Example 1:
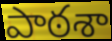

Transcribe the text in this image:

పాఠశా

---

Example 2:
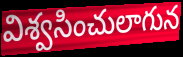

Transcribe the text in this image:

విశ్వసించులాగున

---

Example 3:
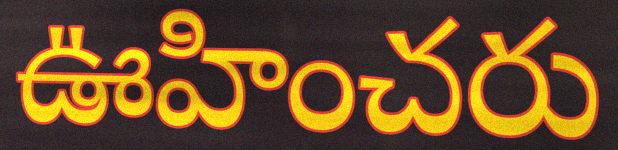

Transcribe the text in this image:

ఊహించరు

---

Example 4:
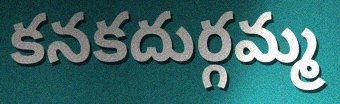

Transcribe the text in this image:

కనకదుర్గమ్మ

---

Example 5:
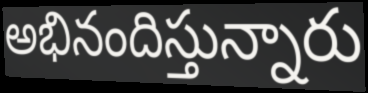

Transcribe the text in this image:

అభినందిస్తున్నారు